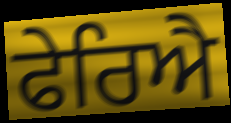
ਫੇਰਿਐ